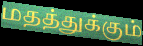
மதத்துக்கும்